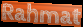
Rahmat